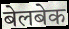
बेलबेक